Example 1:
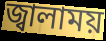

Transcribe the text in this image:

জ্বালাময়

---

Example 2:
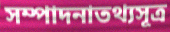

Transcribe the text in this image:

সম্পাদনাতথ্যসূত্র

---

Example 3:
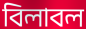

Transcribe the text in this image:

বিলাবল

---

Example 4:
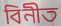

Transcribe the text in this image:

বিনীত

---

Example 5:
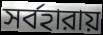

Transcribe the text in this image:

সর্বহারায়